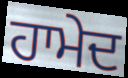
ਹਾਮੇਦ